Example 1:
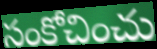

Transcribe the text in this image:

సంకోచించు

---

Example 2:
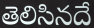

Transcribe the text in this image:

తెలిసినదే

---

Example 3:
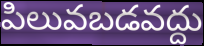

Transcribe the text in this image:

పిలువబడవద్దు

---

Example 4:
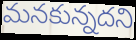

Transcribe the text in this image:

మనకున్నదని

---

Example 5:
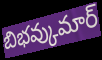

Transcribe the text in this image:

బిభవ్కుమార్